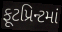
ફૂટપ્રિન્ટમાં